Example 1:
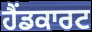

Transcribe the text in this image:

ਹੈਂਡਕਾਰਟ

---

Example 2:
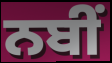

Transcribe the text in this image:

ਨਬੀਂ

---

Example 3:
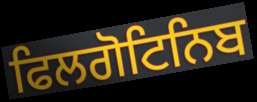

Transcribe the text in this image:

ਫਿਲਗੋਟਿਨਿਬ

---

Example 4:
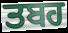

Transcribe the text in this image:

ਤਬਹ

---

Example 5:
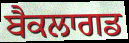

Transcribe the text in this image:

ਬੈਕਲਾਗਡ